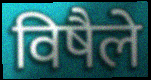
विषैले